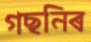
গছনিৰ